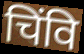
चिंवि